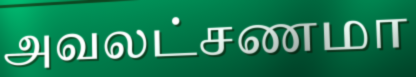
அவலட்சணமா